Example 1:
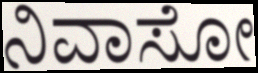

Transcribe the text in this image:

ನಿವಾಸೋ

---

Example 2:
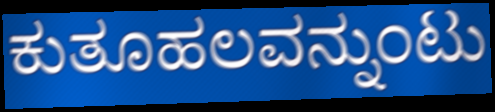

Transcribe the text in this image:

ಕುತೂಹಲವನ್ನುಂಟು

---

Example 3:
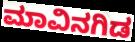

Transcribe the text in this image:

ಮಾವಿನಗಿಡ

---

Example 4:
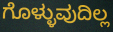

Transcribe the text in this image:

ಗೊಳ್ಳುವುದಿಲ್ಲ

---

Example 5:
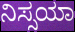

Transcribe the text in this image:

ನಿಸ್ಸಯಾ